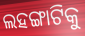
ଲହଙ୍ଗାଟିକୁ